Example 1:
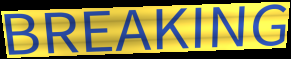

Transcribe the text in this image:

BREAKING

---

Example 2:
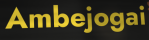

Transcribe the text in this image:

Ambejogai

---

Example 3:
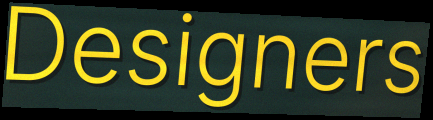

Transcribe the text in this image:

Designers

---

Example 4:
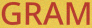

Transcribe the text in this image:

GRAM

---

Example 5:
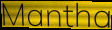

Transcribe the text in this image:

Mantha